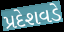
પ્રદેશવડે